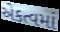
એકત્વમાં